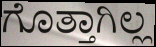
ಗೊತ್ತಾಗಿಲ್ಲ